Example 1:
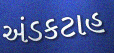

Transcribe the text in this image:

અંડકટાહ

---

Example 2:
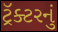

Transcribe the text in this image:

ટ્રૅક્ટરનું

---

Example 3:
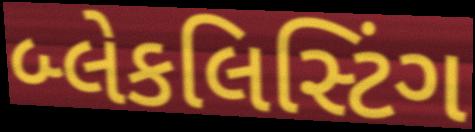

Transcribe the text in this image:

બ્લેકલિસ્ટિંગ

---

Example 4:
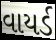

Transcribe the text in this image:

વાયર્ડ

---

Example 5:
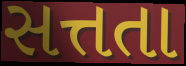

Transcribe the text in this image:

સત્તતા